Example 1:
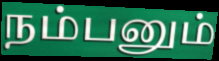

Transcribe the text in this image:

நம்பனும்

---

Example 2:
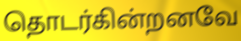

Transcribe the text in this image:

தொடர்கின்றனவே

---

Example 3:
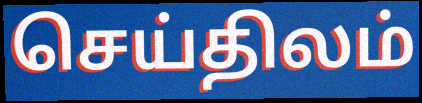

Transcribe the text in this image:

செய்திலம்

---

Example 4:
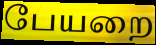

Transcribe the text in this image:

பேயறை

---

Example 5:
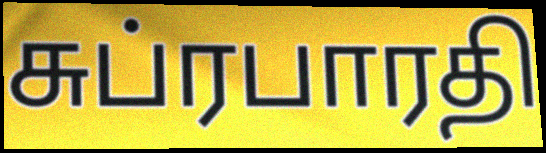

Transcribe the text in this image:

சுப்ரபாரதி